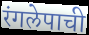
रंगलेपाची